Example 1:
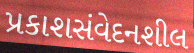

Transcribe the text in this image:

પ્રકાશસંવેદનશીલ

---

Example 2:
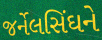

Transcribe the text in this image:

જર્નેલસિંઘને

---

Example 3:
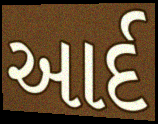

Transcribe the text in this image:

આર્દ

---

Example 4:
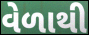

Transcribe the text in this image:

વેળાથી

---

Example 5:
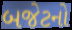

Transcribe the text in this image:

બજેટનો